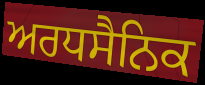
ਅਰਧਸੈਨਿਕ